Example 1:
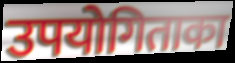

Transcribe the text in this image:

उपयोगिताका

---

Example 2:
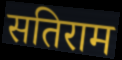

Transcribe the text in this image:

सतिराम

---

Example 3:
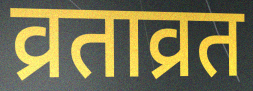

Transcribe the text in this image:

व्रताव्रत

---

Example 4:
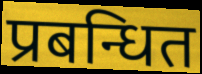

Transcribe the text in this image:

प्रबन्धित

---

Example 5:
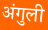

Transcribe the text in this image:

अंगुली